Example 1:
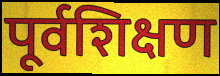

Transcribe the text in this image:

पूर्वशिक्षण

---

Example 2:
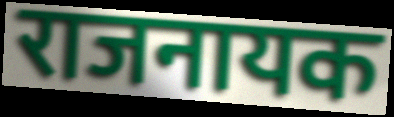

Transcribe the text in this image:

राजनायक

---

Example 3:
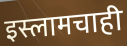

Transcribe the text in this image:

इस्लामचाही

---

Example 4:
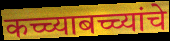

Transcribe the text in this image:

कच्च्याबच्च्यांचे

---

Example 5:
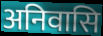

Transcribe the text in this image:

अनिवासि